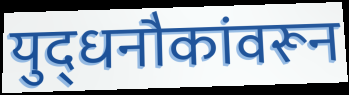
युद्धनौकांवरून